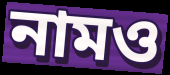
নামও